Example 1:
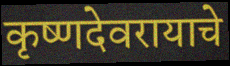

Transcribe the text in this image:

कृष्णदेवरायाचे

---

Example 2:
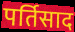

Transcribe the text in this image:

पर्तिसाद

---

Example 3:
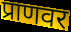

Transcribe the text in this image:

प्राणवर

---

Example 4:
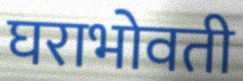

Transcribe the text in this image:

घराभोवती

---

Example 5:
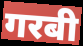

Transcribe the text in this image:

गरबी